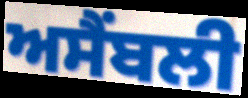
ਅਸੈਂਬਲੀ